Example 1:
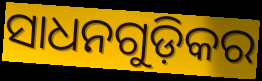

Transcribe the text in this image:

ସାଧନଗୁଡ଼ିକର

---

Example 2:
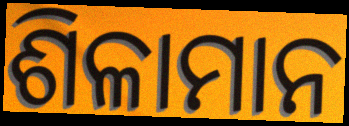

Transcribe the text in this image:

ଶିଳାମାନ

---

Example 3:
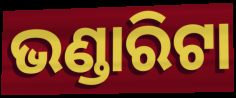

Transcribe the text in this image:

ଭଣ୍ଡାରିଟା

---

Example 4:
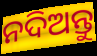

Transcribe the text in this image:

ନଦିଅନ୍ତୁ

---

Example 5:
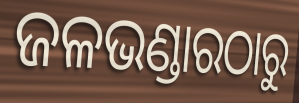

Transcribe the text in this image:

ଜଳଭଣ୍ଡାରଠାରୁ